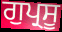
ਗੁਪ੍ਰਸੂ